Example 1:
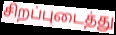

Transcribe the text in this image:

சிறப்புடைத்து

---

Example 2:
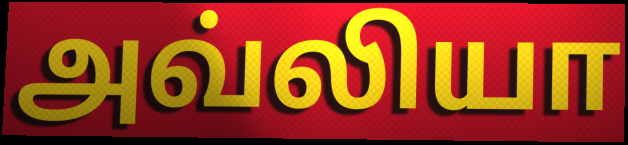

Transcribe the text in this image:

அவ்லியா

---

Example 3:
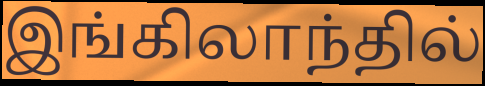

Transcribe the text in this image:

இங்கிலாந்தில்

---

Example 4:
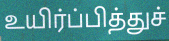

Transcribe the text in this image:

உயிர்ப்பித்துச்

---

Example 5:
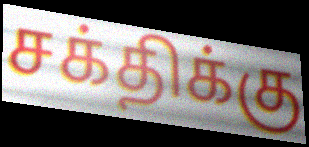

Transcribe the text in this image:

சக்திக்கு